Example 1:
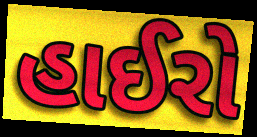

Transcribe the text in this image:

હાઈરો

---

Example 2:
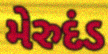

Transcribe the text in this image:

મેરુદંડ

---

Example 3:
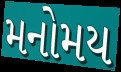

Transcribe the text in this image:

મનોમય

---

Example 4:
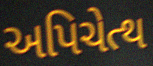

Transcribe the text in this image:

અપિચેત્થ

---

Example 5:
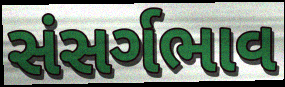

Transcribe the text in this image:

સંસર્ગભાવ